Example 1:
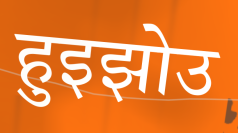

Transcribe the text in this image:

हुइझोउ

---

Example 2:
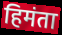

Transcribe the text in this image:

हिमंता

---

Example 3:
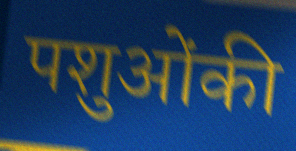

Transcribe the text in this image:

पशुओंकी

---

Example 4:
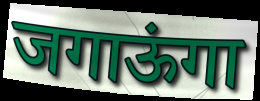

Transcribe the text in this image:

जगाऊंगा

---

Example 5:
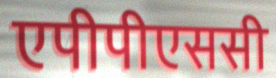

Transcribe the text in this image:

एपीपीएससी